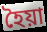
হৈয়া